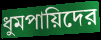
ধুমপায়িদের